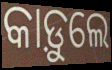
କାଡ଼ୁଲେ